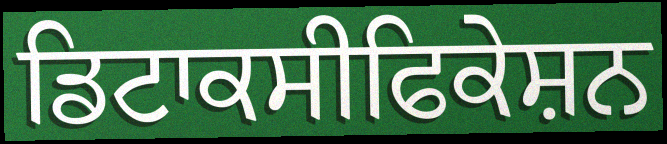
ਡਿਟਾਕਸੀਫਿਕੇਸ਼ਨ